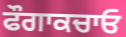
ਫੌਗਾਕਚਾਓ